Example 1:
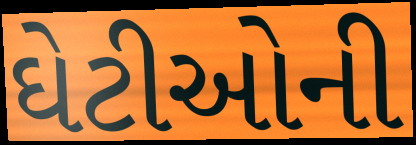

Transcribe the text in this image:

ઘેટીઓની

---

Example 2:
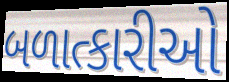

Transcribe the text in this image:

બળાત્કારીઓ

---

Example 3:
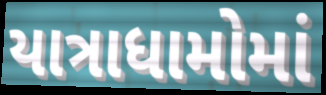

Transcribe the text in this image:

યાત્રાધામોમાં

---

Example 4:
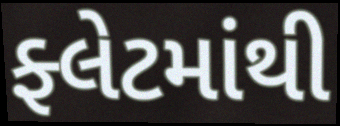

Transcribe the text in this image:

ફ્લેટમાંથી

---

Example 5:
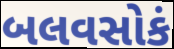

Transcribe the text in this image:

બલવસોકં